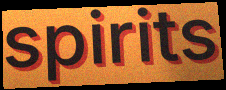
spirits